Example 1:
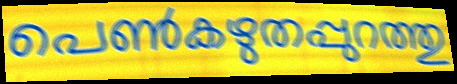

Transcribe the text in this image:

പെൺകഴുതപ്പുറത്തു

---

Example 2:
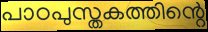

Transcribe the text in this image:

പാഠപുസ്തകത്തിന്റെ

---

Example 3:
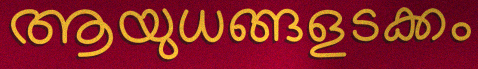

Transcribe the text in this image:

ആയുധങ്ങളടക്കം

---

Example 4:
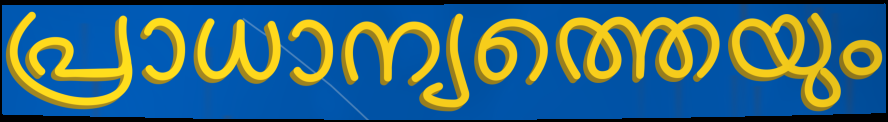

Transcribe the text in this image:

പ്രാധാന്യത്തെയും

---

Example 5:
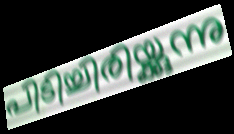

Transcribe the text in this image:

പിടിച്ചിരിയ്ക്കുന്നു